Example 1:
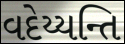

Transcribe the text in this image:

વદેય્યન્તિ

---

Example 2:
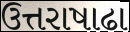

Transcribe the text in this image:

ઉત્તરાષાઢા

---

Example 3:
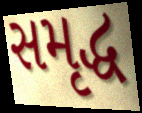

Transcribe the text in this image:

સમૃદ્ધ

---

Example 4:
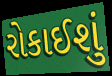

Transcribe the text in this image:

રોકાઈશું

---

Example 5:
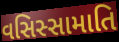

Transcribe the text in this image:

વસિસ્સામાતિ